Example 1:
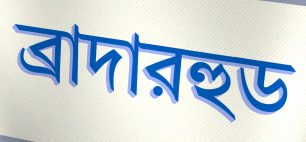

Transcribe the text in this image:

ব্রাদারহুড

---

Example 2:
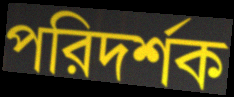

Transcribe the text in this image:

পরিদর্শক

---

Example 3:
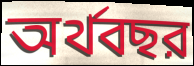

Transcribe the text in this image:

অর্থবছর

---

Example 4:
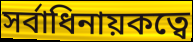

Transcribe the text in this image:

সর্বাধিনায়কত্বে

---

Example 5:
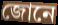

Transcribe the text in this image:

জোনে